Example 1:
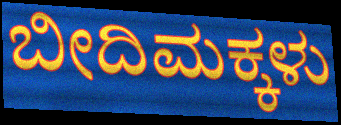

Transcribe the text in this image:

ಬೀದಿಮಕ್ಕಳು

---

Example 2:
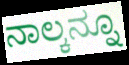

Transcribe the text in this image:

ನಾಲ್ಕನ್ನೂ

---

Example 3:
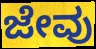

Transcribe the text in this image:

ಜೇವು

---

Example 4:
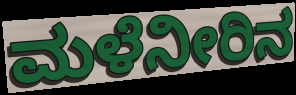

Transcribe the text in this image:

ಮಳೆನೀರಿನ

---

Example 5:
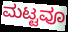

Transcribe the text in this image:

ಮಟ್ಟವೂ